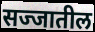
सज्जातील